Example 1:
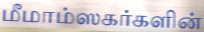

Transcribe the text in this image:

மீமாம்ஸகர்களின்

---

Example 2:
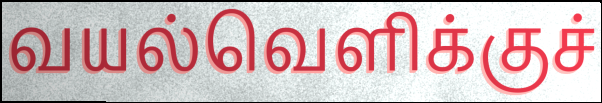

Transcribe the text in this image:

வயல்வெளிக்குச்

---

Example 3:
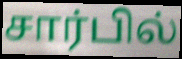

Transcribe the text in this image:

சார்பில்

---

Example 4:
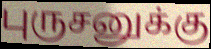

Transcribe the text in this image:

புருசனுக்கு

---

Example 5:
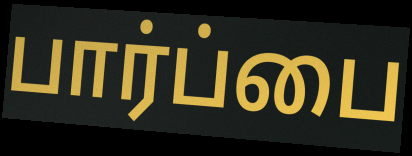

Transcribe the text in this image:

பார்ப்பை